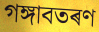
গঙ্গাবতৰণ